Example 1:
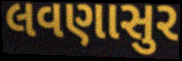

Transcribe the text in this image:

લવણાસુર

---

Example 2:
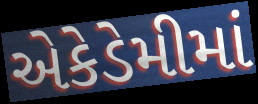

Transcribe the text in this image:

એકેડેમીમાં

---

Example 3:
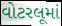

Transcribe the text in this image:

વોટરલૂમાં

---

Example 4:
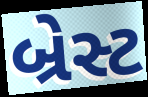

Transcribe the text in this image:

બ્રેસ્ટ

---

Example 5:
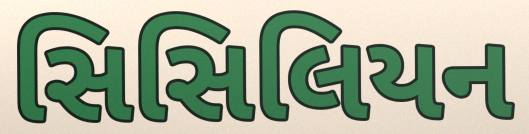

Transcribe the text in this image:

સિસિલિયન